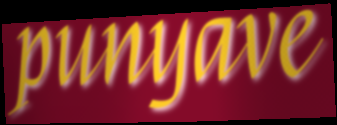
punyave